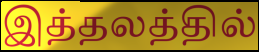
இத்தலத்தில்